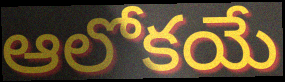
ఆలోకయే